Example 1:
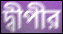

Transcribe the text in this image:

দ্বীপীর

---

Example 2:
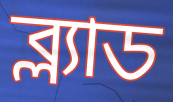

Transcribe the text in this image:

ব্ল্যাড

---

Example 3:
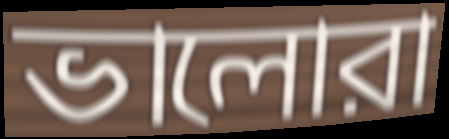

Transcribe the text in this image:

ভালোরা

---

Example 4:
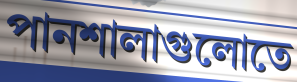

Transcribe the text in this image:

পানশালাগুলোতে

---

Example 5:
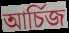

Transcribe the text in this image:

আর্চিজ